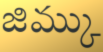
జిమ్కు